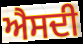
ਐਸਦੀ